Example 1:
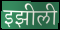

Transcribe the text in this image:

इझीली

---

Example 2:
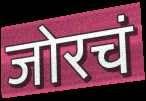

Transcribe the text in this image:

जोरचं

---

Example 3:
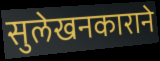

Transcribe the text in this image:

सुलेखनकाराने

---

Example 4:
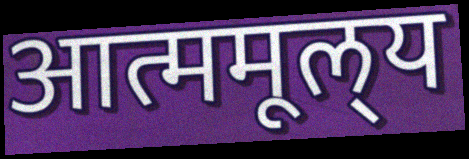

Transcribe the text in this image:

आत्ममूल्य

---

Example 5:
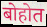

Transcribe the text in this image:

बोहोत